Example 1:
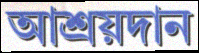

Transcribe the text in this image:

আশ্রয়দান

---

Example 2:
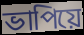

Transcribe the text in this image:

ভাপিয়ে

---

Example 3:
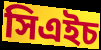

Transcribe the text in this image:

সিএইচ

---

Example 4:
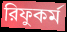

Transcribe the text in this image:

রিফুকর্ম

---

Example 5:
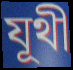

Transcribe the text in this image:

যূথী